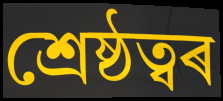
শ্ৰেষ্ঠত্বৰ